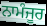
ਨਾਮੰਜੂਰ